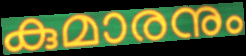
കുമാരനും